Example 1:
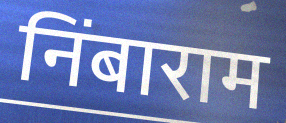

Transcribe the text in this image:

निंबाराम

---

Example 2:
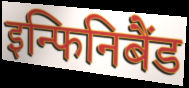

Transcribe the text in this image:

इन्फिनिबैंड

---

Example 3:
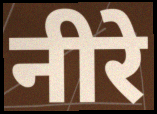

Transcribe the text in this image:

नीरे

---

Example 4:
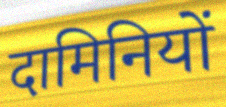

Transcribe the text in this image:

दामिनियों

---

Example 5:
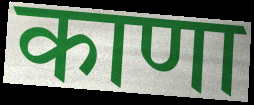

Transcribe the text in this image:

काणा